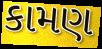
કામણ